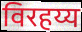
विरहय्य